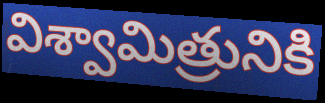
విశ్వామిత్రునికి